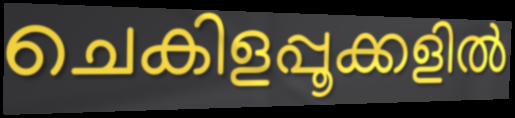
ചെകിളപ്പൂക്കളിൽ